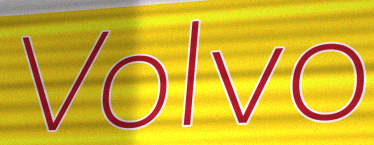
Volvo